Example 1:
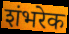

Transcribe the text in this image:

शंभरेक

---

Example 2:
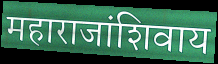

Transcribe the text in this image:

महाराजांशिवाय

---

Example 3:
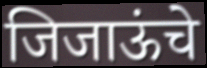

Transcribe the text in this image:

जिजाऊंचे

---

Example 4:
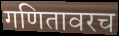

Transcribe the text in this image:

गणितावरच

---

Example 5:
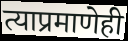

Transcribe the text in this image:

त्याप्रमाणेही